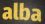
alba